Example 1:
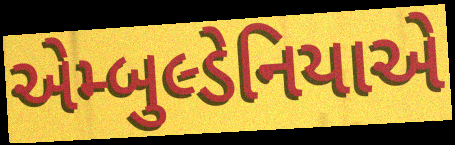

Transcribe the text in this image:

એમ્બુલ્ડેનિયાએ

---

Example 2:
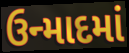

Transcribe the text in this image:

ઉન્માદમાં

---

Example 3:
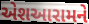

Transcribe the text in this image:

એશઆરામને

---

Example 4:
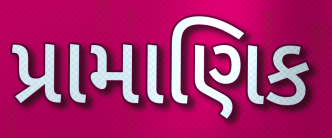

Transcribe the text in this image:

પ્રામાણિક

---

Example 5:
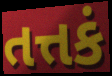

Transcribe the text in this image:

તત્તકં